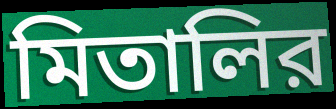
মিতালির